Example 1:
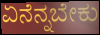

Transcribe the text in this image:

ಏನೆನ್ನಬೇಕು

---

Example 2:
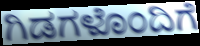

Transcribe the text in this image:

ಗಿಡಗಳೊಂದಿಗೆ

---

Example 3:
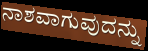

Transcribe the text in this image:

ನಾಶವಾಗುವುದನ್ನು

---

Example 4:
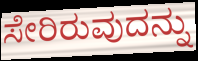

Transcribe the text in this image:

ಸೇರಿರುವುದನ್ನು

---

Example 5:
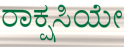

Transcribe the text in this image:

ರಾಕ್ಷಸಿಯೇ